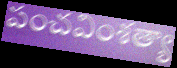
పంచవింశత్యా